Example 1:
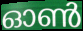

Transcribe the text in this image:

ഓൺ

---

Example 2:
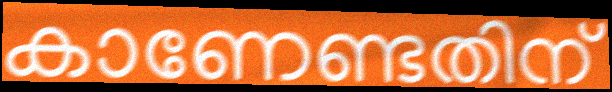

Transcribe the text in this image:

കാണേണ്ടതിന്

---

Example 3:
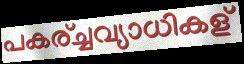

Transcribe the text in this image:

പകര്ച്ചവ്യാധികള്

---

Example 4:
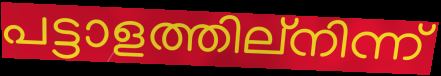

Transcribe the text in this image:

പട്ടാളത്തില്നിന്ന്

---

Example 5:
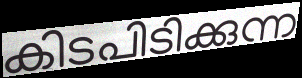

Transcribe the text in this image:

കിടപിടിക്കുന്ന